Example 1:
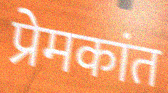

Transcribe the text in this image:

प्रेमकांत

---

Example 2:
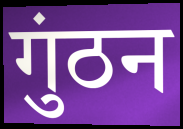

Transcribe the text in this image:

गुंठन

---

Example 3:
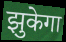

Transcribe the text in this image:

झुकेगा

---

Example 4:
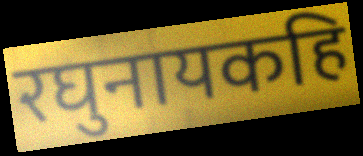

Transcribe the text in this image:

रघुनायकहि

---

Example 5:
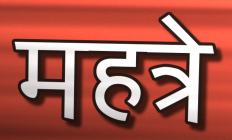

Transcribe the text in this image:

महत्रे